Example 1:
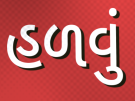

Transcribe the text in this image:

હળવું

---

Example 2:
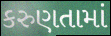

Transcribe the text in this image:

કરુણતામાં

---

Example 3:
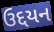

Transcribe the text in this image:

ઉદ્દયન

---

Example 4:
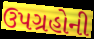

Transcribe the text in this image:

ઉપગ્રહોની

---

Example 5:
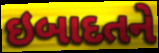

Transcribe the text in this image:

ઇબાદતને